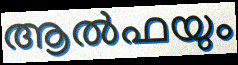
ആൽഫയും